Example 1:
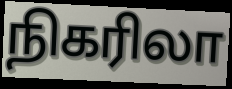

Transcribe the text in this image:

நிகரிலா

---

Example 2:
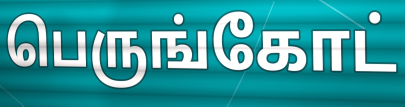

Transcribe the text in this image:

பெருங்கோட்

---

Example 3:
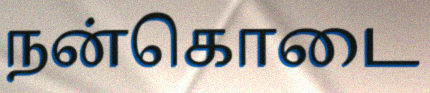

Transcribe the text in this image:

நன்கொடை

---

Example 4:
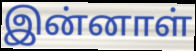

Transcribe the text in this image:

இன்னாள்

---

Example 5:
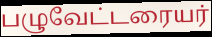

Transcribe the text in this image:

பழுவேட்டரையர்